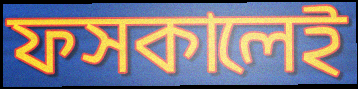
ফসকালেই